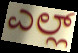
ಎಲ್ಲ್